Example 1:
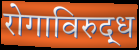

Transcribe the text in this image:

रोगाविरुद्ध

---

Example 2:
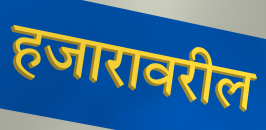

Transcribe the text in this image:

हजारावरील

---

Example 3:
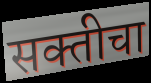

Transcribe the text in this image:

सक्‍तीचा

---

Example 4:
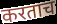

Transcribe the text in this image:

करताच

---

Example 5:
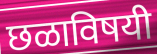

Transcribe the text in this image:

छळाविषयी